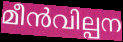
മീൻവില്പന